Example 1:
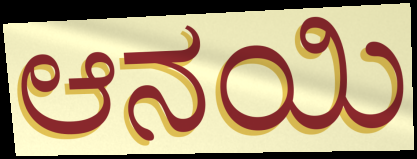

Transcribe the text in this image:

ಆನಯಿ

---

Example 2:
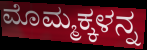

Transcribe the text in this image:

ಮೊಮ್ಮಕ್ಕಳನ್ನ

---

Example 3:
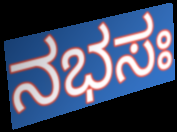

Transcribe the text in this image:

ನಭಸಃ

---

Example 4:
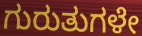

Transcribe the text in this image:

ಗುರುತುಗಳೇ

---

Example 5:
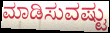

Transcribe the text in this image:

ಮಾಡಿಸುವಷ್ಟು